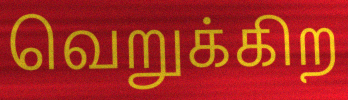
வெறுக்கிற